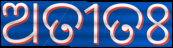
ଅତୀତଃ